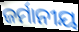
ଜର୍ମାନୀୟ